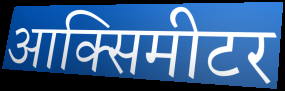
आक्सिमीटर